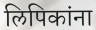
लिपिकांना